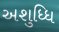
અશુધ્ધિ